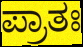
ಪ್ರಾತಃ